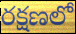
రక్షణలో